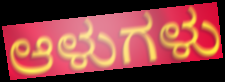
ಆಳುಗಳು